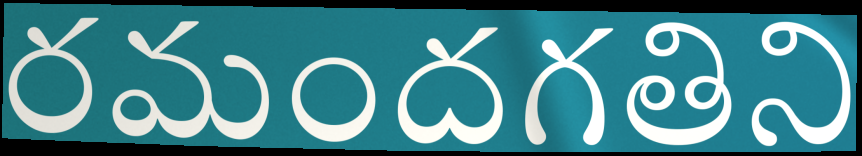
రమందగతిని